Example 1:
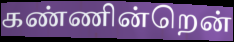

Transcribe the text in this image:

கண்ணின்றென்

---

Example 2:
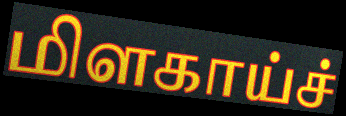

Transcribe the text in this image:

மிளகாய்ச்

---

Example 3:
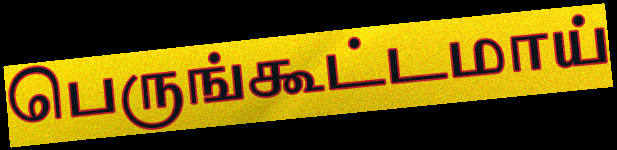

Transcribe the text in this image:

பெருங்கூட்டமாய்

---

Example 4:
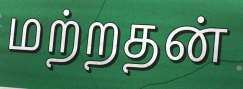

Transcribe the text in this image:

மற்றதன்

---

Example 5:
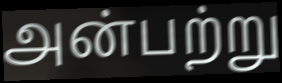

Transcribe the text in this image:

அன்பற்று